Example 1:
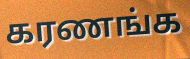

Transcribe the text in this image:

கரணங்க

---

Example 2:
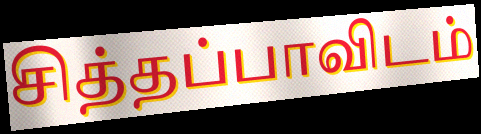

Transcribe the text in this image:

சித்தப்பாவிடம்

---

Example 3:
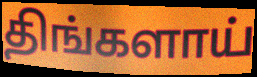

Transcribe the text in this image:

திங்களாய்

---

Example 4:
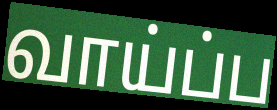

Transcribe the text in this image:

வாய்ப்ப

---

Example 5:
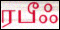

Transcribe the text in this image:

ரபீஃ